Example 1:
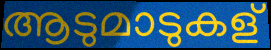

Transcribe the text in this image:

ആടുമാടുകള്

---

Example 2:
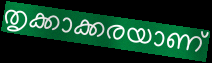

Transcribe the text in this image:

തൃക്കാക്കരയാണ്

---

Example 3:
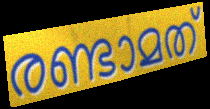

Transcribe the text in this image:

രണ്ടാമത്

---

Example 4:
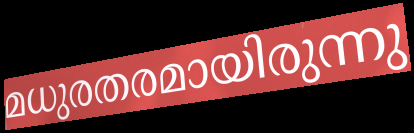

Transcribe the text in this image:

മധുരതരമായിരുന്നു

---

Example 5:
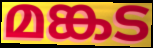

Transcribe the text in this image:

മങ്കട